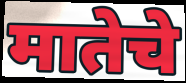
मातेचे